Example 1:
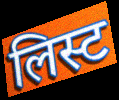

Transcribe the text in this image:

लिस्ट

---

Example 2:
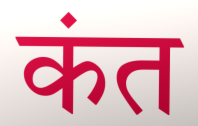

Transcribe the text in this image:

कंत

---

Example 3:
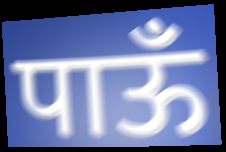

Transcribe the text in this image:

पाऊँ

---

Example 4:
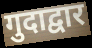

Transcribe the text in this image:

गुदाद्वार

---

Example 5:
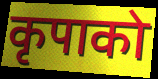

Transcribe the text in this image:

कृपाको